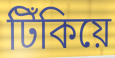
টিঁকিয়ে